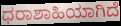
ಧರಾಶಾಹಿಯಾಗಿದೆ